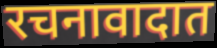
रचनावादात